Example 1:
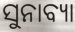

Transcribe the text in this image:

ସୁନାବ୍ୟା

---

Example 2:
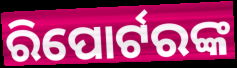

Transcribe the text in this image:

ରିପୋର୍ଟରଙ୍କ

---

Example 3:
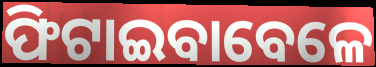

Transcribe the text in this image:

ଫିଟାଇବାବେଳେ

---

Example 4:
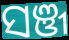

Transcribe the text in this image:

ସଞ୍ଜ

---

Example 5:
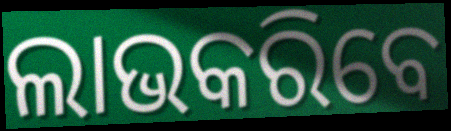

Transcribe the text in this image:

ଲାଭକରିବେ